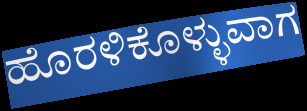
ಹೊರಳಿಕೊಳ್ಳುವಾಗ